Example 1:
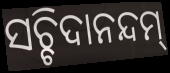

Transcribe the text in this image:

ସଚ୍ଚିଦାନନ୍ଦମ୍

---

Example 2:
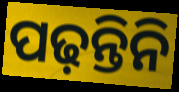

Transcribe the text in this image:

ପଢ଼ନ୍ତିନି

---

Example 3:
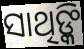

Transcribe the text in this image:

ସାଥିଙ୍କି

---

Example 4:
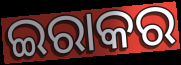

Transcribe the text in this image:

ଇରାକର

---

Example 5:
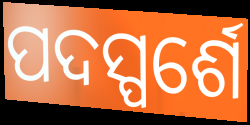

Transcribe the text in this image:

ପଦସ୍ପର୍ଶେ